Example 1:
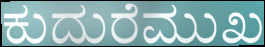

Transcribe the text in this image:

ಕುದುರೆಮುಖ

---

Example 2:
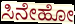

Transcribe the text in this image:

ಸಿನೇಹೋ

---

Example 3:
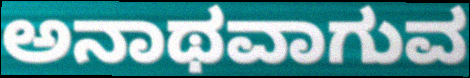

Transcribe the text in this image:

ಅನಾಥವಾಗುವ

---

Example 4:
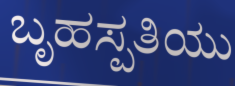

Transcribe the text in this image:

ಬೃಹಸ್ಪತಿಯು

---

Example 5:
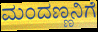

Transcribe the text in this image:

ಮಂದಣ್ಣನಿಗೆ